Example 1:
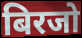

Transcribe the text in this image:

बिरजो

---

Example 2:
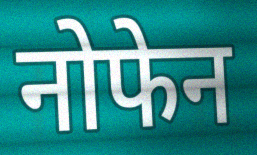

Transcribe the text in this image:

नोफेन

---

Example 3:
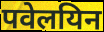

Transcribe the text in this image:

पवेलयिन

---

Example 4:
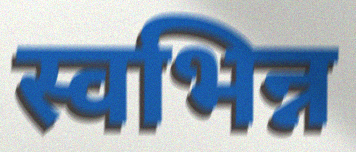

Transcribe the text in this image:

स्वभिन्न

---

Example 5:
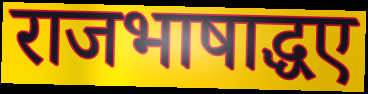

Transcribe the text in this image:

राजभाषाद्धए